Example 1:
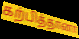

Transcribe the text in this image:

கற்பித்தானா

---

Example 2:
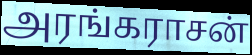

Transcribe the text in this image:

அரங்கராசன்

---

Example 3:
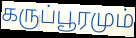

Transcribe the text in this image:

கருப்பூரமும்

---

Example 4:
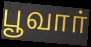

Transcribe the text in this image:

பூவார்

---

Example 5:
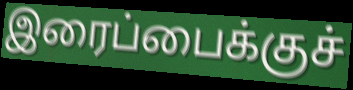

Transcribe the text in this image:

இரைப்பைக்குச்